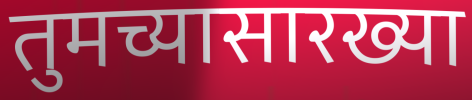
तुमच्यासारख्या